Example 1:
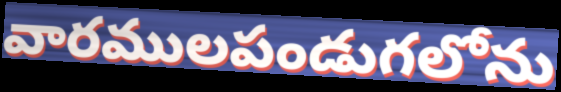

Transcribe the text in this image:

వారములపండుగలోను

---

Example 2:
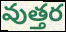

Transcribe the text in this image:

వుత్తర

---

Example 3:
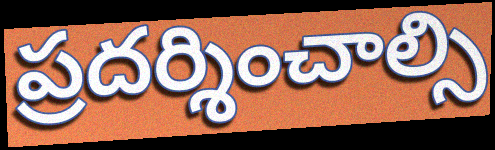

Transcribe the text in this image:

ప్రదర్శించాల్సి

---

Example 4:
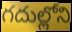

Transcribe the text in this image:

గదుల్లోని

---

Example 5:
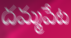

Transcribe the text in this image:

దమ్మపేట